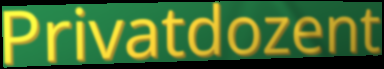
Privatdozent